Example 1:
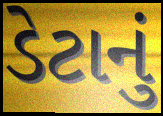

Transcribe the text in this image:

ડેટાનું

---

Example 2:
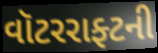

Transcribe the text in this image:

વૉટરરાફ્ટની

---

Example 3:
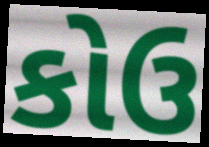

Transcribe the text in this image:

કોઉ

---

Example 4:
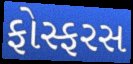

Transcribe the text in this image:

ફોસ્ફરસ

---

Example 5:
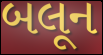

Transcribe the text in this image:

બલૂન